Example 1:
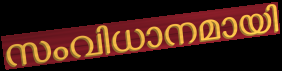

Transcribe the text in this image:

സംവിധാനമായി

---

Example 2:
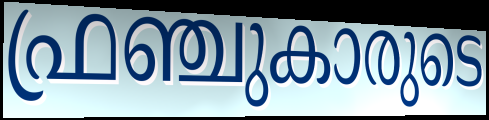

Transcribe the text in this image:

ഫ്രഞ്ചുകാരുടെ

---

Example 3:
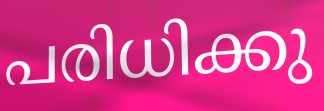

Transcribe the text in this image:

പരിധിക്കു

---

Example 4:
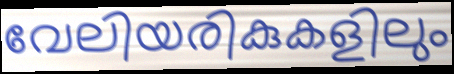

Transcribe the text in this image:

വേലിയരികുകളിലും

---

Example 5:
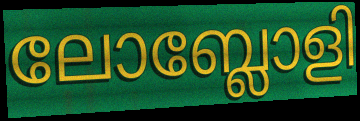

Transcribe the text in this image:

ലോബ്ലോളി